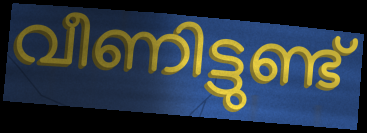
വീണിട്ടുണ്ട്